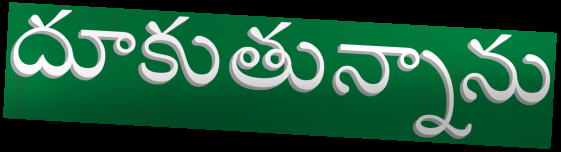
దూకుతున్నాను